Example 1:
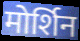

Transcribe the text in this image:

मोर्शिन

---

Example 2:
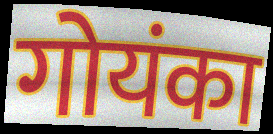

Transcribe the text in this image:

गोयंका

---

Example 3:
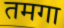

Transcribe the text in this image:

तमगा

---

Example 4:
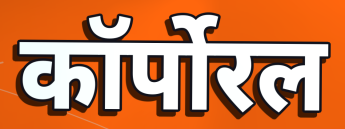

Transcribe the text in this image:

कॉर्पोरल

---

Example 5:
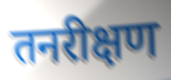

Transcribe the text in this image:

तनरीक्षण